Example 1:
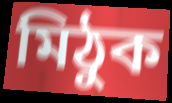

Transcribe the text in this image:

মিঠুক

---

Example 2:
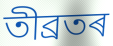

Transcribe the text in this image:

তীব্ৰতৰ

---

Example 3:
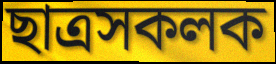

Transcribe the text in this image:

ছাত্ৰসকলক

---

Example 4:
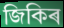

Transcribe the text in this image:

জিকিৰ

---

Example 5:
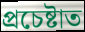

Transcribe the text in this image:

প্ৰচেষ্টাত